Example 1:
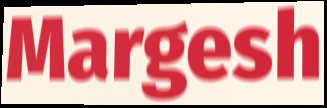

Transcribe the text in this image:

Margesh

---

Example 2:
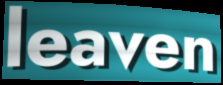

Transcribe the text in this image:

leaven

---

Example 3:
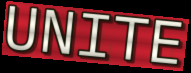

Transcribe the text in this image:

UNITE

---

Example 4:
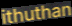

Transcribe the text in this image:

ithuthan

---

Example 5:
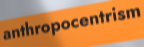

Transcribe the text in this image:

anthropocentrism